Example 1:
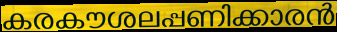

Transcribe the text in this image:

കരകൗശലപ്പണിക്കാരൻ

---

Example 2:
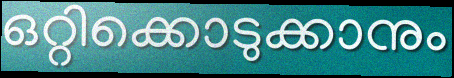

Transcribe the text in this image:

ഒറ്റിക്കൊടുക്കാനും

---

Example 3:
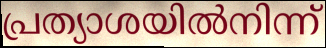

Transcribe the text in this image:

പ്രത്യാശയിൽനിന്ന്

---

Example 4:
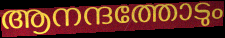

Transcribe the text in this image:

ആനന്ദത്തോടും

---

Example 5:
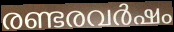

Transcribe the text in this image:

രണ്ടരവർഷം